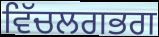
ਵਿੱਚਲਗਭਗ